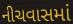
નીચવાસમાં